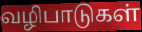
வழிபாடுகள்